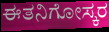
ಈತನಿಗೋಸ್ಕರ